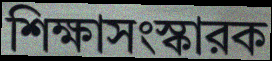
শিক্ষাসংস্কারক